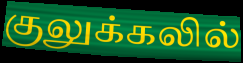
குலுக்கலில்